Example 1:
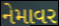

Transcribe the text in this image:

નેમાવર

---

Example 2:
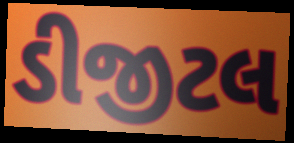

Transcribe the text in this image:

ડીજીટલ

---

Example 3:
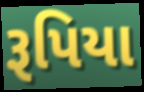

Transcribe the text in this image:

રૂપિયા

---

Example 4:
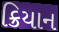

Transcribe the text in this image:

ક્રિયાન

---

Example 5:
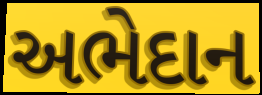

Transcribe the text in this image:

અભેદાન